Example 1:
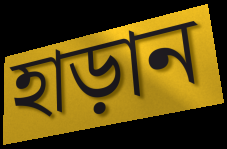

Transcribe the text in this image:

হাড়ান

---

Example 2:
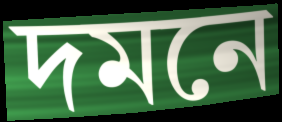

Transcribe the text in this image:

দমনে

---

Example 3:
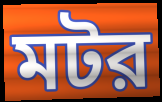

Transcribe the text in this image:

মটর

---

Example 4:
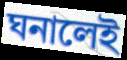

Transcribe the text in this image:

ঘনালেই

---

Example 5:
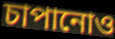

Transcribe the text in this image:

চাপানোও